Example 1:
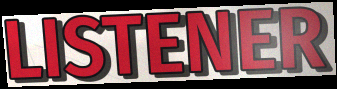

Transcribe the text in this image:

LISTENER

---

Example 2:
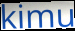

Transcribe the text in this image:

kimu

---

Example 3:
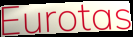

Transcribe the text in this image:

Eurotas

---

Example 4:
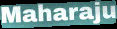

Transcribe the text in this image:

Maharaju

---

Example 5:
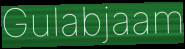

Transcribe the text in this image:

Gulabjaam